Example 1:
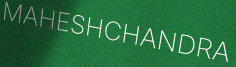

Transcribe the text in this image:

MAHESHCHANDRA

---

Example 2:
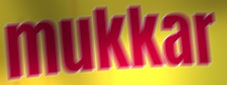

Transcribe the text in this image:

mukkar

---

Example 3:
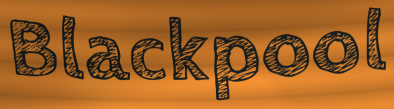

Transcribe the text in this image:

Blackpool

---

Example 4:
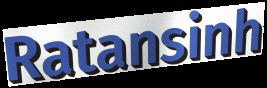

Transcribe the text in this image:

Ratansinh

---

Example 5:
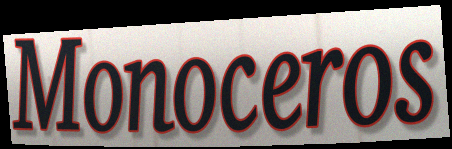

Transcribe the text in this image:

Monoceros